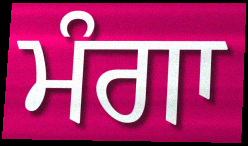
ਮੰਗਾ